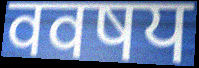
ववषय